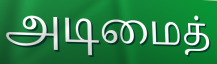
அடிமைத்